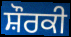
ਸ਼ੌਰਕੀ